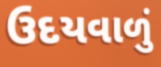
ઉદયવાળું